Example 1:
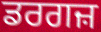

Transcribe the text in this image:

ਡਰਗਜ਼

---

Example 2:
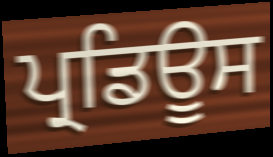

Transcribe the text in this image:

ਪ੍ਰਡਿਊਸ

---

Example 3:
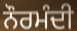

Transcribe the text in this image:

ਨੌਰਮੰਦੀ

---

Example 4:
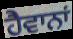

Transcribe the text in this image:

ਹੈਵਾਨਾਂ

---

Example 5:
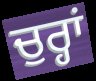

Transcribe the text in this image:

ਚੁਰ੍ਹਾਂ